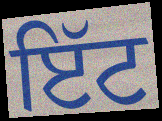
ਇੱਟ